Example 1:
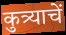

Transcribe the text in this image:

कुत्र्याचें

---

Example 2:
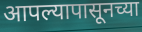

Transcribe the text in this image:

आपल्यापासूनच्या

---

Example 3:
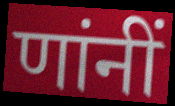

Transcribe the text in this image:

णांनीं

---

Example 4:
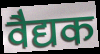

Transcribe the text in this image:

वैद्यक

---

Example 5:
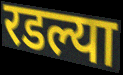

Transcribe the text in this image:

रडल्या